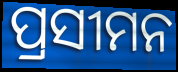
ପ୍ରସୀମନ